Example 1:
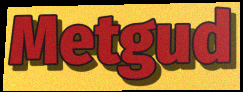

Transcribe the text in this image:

Metgud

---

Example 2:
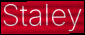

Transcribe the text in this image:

Staley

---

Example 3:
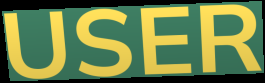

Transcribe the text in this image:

USER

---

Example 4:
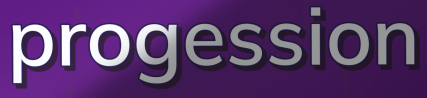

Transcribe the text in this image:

progession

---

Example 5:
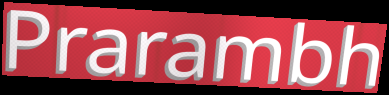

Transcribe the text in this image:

Prarambh